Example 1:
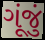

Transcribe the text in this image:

ગૂંજું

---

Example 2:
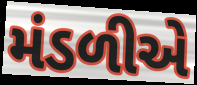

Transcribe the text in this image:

મંડળીએ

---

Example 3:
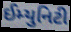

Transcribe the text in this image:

ઈમ્યુનિટી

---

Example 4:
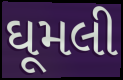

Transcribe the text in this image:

ઘૂમલી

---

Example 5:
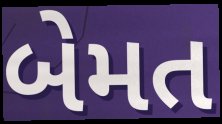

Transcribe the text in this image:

બેમત